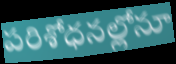
పరిశోధనల్లోనూ